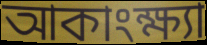
আকাংক্ষ্যা